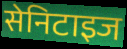
सेनिटाइज